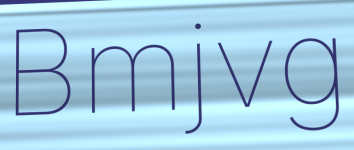
Bmjvg